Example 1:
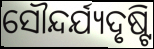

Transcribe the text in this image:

ସୌନ୍ଦର୍ଯ୍ୟଦୃଷ୍ଟି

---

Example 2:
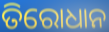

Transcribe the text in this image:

ତିରୋଧାନ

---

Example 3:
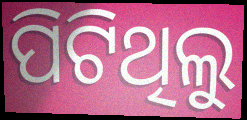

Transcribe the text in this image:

ପିଟିଥିଲୁ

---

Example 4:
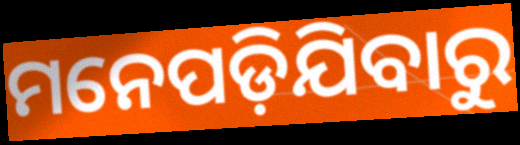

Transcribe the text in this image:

ମନେପଡ଼ିଯିବାରୁ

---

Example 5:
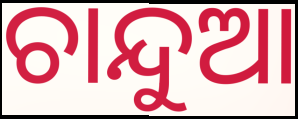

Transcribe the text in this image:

ଚାନ୍ଦୁଆ